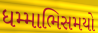
ધમ્માભિસમયો